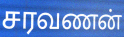
சரவணன்